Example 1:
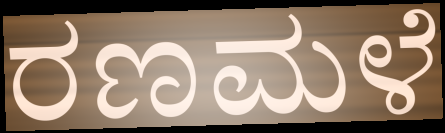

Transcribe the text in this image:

ರಣಮಳೆ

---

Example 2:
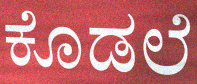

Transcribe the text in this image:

ಕೊಡಲೆ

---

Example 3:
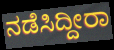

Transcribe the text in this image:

ನಡೆಸಿದ್ದೀರಾ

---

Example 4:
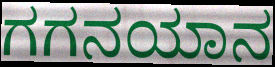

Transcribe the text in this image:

ಗಗನಯಾನ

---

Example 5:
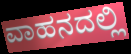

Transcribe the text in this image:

ವಾಹನದಲ್ಲಿ